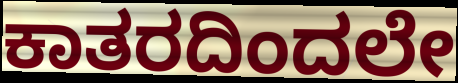
ಕಾತರದಿಂದಲೇ